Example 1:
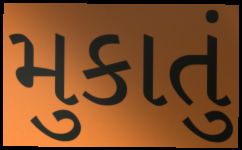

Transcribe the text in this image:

મુકાતું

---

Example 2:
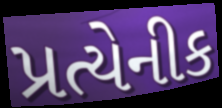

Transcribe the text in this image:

પ્રત્યેનીક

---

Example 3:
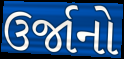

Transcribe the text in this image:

ઉર્જાનો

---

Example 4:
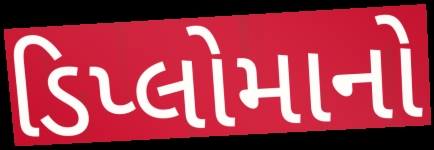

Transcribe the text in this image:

ડિપ્લોમાનો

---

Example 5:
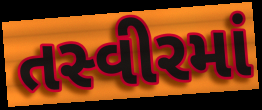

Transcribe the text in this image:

તસ્વીરમાં